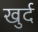
खुर्द